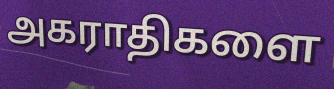
அகராதிகளை